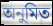
অনুমিত